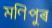
মণিপুৰ